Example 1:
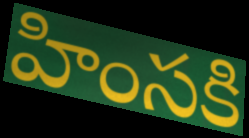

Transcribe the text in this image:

హింసకి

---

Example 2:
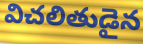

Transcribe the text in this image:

విచలితుడైన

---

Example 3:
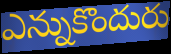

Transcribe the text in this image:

ఎన్నుకొందురు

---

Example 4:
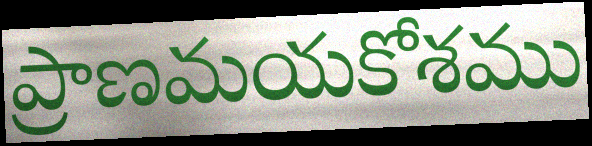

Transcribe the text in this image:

ప్రాణమయకోశము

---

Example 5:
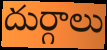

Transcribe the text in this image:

దుర్గాలు